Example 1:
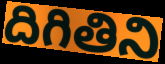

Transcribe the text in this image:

దిగితిని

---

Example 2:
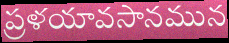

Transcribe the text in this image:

ప్రళయావసానమున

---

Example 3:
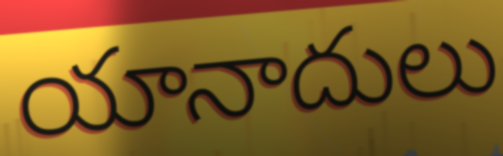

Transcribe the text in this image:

యానాదులు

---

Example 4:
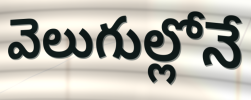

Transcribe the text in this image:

వెలుగుల్లోనే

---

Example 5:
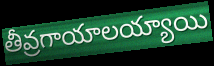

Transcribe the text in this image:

తీవ్రగాయాలయ్యాయి